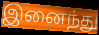
இனைந்து